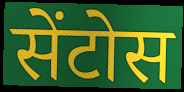
सेंटोस